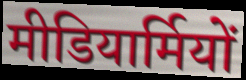
मीडियार्मियों